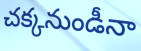
చక్కనుండీనా